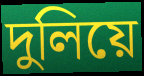
দুলিয়ে